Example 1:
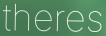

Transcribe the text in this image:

theres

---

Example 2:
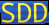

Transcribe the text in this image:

SDD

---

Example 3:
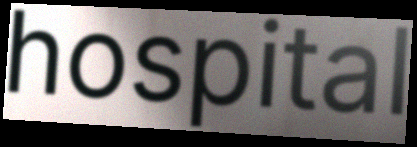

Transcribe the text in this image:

hospital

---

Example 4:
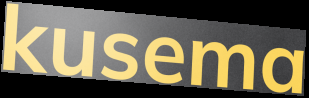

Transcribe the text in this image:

kusema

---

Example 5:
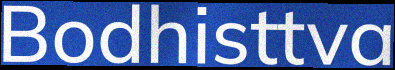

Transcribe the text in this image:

Bodhisttva